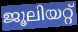
ജൂലിയറ്റ്